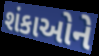
શંકાઓને